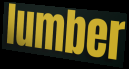
lumber